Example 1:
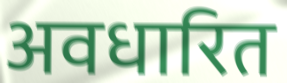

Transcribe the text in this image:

अवधारित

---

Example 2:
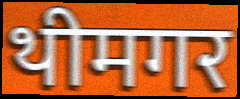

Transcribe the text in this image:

थीमगर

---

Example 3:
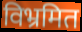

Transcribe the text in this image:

विभ्रमित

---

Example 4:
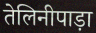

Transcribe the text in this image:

तेलिनीपाड़ा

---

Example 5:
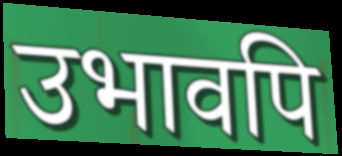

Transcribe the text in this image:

उभावपि